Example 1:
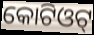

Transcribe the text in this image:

କୋଟିଓଟ୍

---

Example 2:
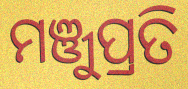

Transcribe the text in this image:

ମଞ୍ଜୁପ୍ରତି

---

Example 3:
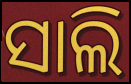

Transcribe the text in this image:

ସାଲି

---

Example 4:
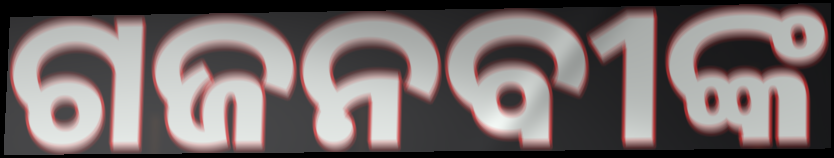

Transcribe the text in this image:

ଗଜନବୀଙ୍କ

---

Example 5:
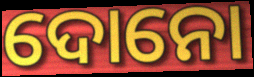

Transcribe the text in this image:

ଦୋନୋ